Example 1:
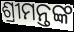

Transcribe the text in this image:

ଶ୍ରୀମନ୍ତଙ୍କ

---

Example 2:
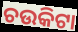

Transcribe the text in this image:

ଚଉକିଟା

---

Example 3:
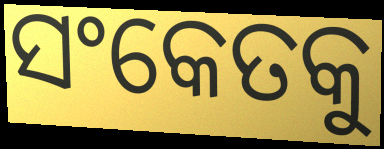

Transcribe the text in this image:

ସଂକେତକୁ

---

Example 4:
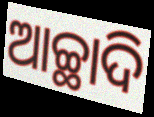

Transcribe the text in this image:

ଆଚ୍ଛାଦି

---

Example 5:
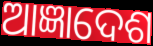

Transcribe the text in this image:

ଆଜ୍ଞାଦେଶ